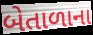
બેતાળાના